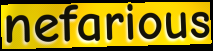
nefarious